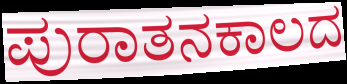
ಪುರಾತನಕಾಲದ